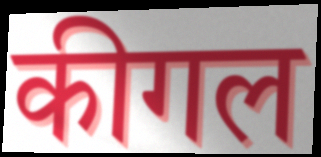
कीगल